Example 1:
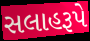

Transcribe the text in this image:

સલાહરૂપે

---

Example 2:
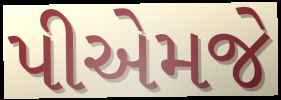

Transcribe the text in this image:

પીએમજે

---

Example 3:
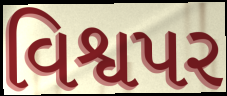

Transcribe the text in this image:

વિશ્વપર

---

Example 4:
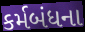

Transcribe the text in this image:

કર્મબંધના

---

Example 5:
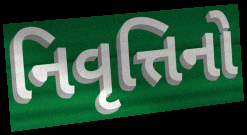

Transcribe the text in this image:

નિવૃત્તિનો